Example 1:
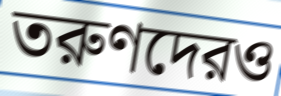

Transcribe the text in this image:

তরুণদেরও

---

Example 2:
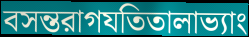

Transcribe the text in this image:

বসন্তরাগযতিতালাভ্যাং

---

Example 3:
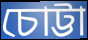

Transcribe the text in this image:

চোট্টা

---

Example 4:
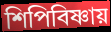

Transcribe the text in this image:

শিপিবিষ্ণায়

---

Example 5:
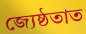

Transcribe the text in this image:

জ্যেষ্ঠতাত